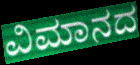
ವಿಮಾನದ